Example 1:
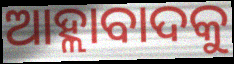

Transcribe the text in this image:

ଆହ୍ଲାବାଦକୁ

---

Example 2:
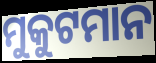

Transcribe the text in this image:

ମୁକୁଟମାନ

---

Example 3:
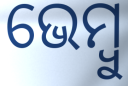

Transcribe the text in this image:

ଭେମ୍ବୁ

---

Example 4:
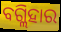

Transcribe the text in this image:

ବଗ୍ଲିହାର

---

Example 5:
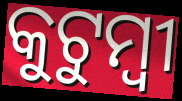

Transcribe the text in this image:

କୁଟୁମ୍ବୀ